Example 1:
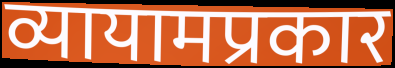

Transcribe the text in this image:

व्यायामप्रकार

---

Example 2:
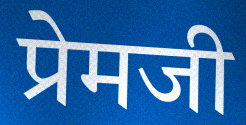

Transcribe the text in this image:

प्रेमजी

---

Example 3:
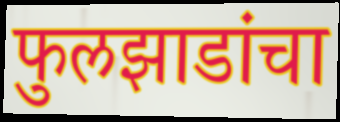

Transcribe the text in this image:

फुलझाडांचा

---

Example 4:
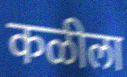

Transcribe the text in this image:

कळीला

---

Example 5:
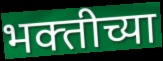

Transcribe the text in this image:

भक्‍तीच्या